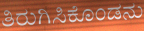
ತಿರುಗಿಸಿಕೊಂಡನು